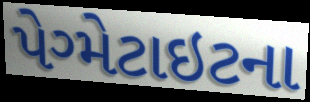
પેગ્મેટાઇટના